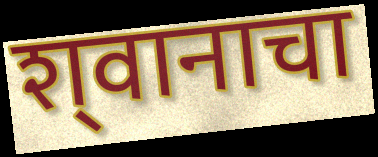
श्वानाचा